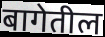
बागेतील